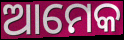
ଆମେକ